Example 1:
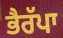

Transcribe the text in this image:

ਭੈਰੱਪਾ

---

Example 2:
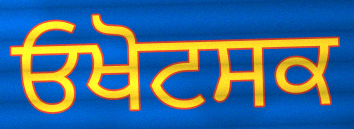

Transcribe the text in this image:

ਓਖੋਟਸਕ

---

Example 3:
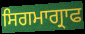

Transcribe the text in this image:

ਸਿਗਮਾਗ੍ਰਾਫ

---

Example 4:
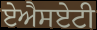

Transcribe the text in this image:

ਏਐਸਏਟੀ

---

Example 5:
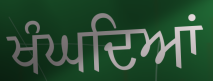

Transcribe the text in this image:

ਖੰਘਦਿਆਂ